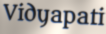
Vidyapati